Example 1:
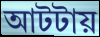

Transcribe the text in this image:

আটটায়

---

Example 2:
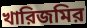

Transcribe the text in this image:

খারিজমির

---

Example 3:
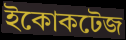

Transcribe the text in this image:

ইকোকটেজ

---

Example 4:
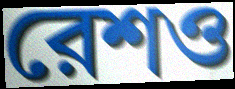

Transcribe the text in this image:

রেশও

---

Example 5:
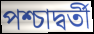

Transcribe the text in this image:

পশ্চাদ্বর্তী